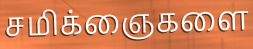
சமிக்ஞைகளை